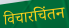
विचारचिंतन